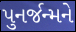
પુનર્જન્મને